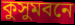
কুসুমবনে